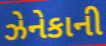
ઝેનેકાની